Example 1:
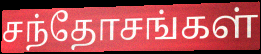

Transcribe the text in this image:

சந்தோசங்கள்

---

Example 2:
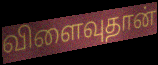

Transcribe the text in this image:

விளைவுதான்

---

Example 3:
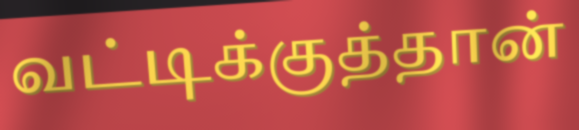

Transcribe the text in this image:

வட்டிக்குத்தான்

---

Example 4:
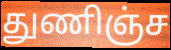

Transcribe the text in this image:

துணிஞ்ச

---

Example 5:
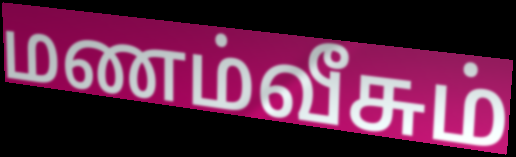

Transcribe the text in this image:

மணம்வீசும்